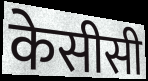
केसीसी